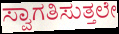
ಸ್ವಾಗತಿಸುತ್ತಲೇ